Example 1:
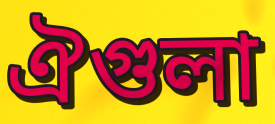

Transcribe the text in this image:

ঐগুলা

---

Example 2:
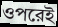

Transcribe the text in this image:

ওপরেই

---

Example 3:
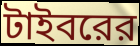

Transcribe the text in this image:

টাইবরের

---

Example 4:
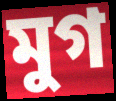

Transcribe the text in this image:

মুগ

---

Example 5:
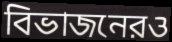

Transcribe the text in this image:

বিভাজনেরও